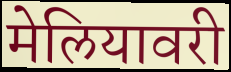
मेलियावरी